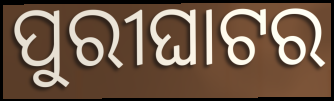
ପୁରୀଘାଟର